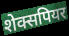
शेक्सपियर